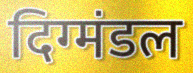
दिग्मंडल